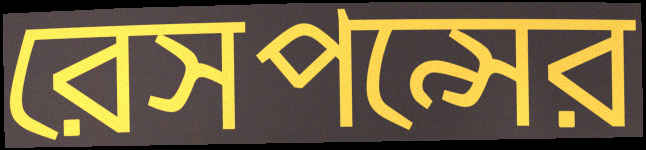
রেসপন্সের